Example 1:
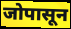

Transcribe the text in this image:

जोपासून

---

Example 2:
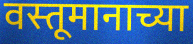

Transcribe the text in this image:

वस्तूमानाच्या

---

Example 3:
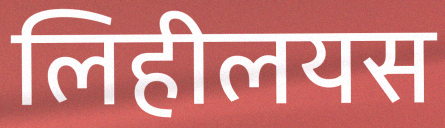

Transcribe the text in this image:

लिहीलयस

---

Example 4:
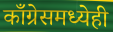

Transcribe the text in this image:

काँग्रेसमध्येही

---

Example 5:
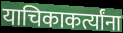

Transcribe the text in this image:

याचिकाकर्त्यांना